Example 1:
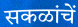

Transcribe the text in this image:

सकळांचें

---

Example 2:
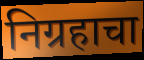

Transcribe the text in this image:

निग्रहाचा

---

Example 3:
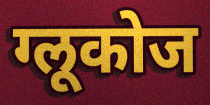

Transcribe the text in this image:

ग्लूकोज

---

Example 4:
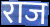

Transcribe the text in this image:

राज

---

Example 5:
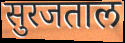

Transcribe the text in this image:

सुरजताल